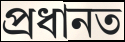
প্ৰধানত